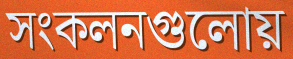
সংকলনগুলোয়